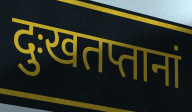
दुःखतप्तानां